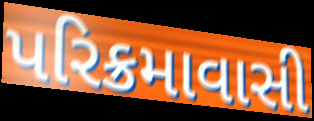
પરિક્રમાવાસી